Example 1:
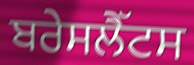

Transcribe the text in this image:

ਬਰੇਸਲੈੱਟਸ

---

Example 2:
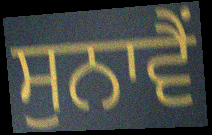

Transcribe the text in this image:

ਸੁਨਾਵੈਂ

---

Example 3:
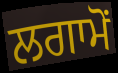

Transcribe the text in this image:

ਲਗਾਮੋਂ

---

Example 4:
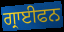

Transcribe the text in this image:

ਗ੍ਰਾਈਫਨ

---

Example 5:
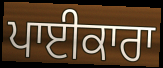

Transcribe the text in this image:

ਪਾਈਕਾਰਾ